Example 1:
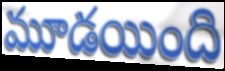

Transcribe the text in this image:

మూడయింది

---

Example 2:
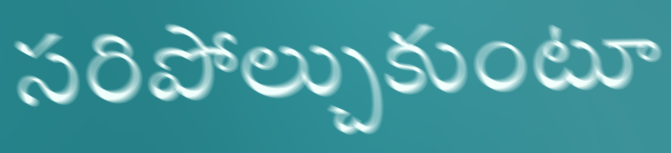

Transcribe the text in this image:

సరిపోల్చుకుంటూ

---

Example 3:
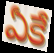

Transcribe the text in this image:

ఏకే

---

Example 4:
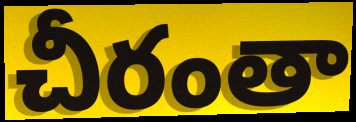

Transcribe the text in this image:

చీరంతా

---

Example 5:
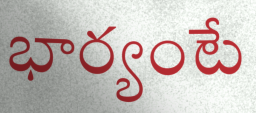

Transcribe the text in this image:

భార్యంటే